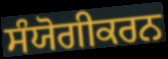
ਸੰਯੋਗੀਕਰਨ